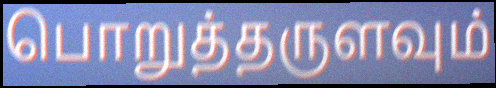
பொறுத்தருளவும்